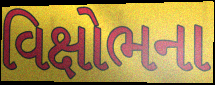
વિક્ષોભના